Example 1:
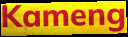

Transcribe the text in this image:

Kameng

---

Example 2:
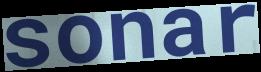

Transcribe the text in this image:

sonar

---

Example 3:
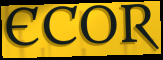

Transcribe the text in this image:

ECOR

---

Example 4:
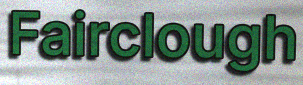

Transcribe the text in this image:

Fairclough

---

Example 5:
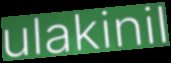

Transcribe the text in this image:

ulakinil